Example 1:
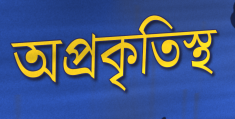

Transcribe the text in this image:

অপ্রকৃতিস্থ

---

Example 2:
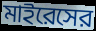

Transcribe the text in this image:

মাইরেসের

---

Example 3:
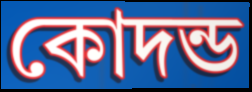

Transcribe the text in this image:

কোদন্ড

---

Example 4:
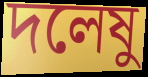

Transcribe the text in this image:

দলেষু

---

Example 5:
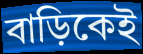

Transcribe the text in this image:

বাড়িকেই